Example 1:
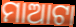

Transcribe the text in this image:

ମାଆଟା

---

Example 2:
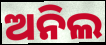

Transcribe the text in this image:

ଅନିଲ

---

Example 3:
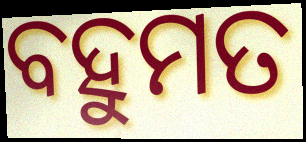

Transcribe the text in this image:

ବହୁମତ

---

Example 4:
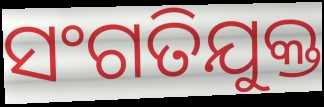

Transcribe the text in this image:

ସଂଗତିଯୁକ୍ତ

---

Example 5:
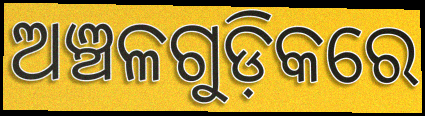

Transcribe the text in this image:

ଅଞ୍ଚଳଗୁଡ଼ିକରେ